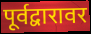
पूर्वद्वारावर